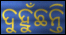
ଦୁହୁଁଛନ୍ତି